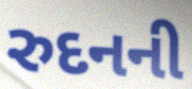
રુદનની